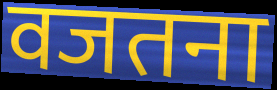
वजतना